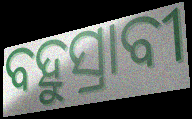
ବହୁସ୍ରାବୀ